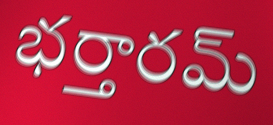
భర్తారమ్